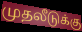
முதலீடுக்கு